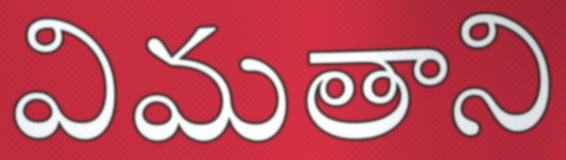
విమతాని